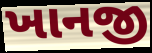
ખાનજી